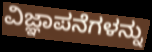
ವಿಜ್ಞಾಪನೆಗಳನ್ನು